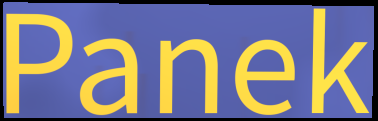
Panek